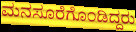
ಮನಸೂರೆಗೊಂಡಿದ್ದರು